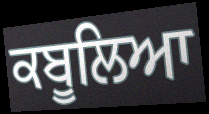
ਕਬੂਲਿਆ